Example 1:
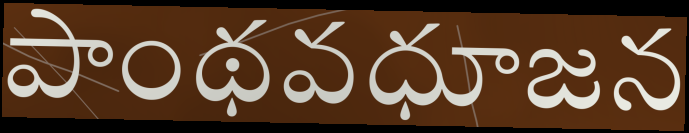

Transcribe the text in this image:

పాంథవధూజన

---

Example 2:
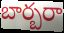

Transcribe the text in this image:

బార్బరా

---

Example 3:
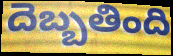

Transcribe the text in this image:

దెబ్బతింది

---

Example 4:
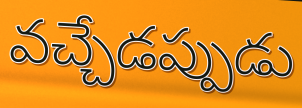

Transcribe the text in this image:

వచ్చేడప్పుడు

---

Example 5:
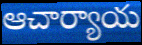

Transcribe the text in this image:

ఆచార్యాయ